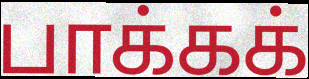
பாக்கக்